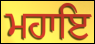
ਮਹਾਇ